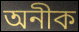
অনীক